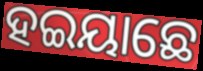
ହଇୟାଛେ